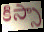
కిస్సా